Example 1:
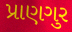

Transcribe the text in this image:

પ્રાણગુર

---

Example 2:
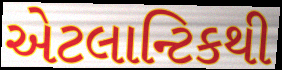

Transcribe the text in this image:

એટલાન્ટિકથી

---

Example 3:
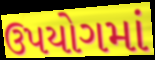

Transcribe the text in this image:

ઉપયોગમાં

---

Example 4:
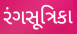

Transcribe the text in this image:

રંગસૂત્રિકા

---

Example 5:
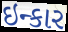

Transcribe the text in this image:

ઇન્કાર